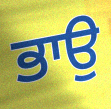
ਭਾਉ